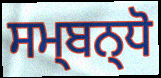
ਸਮ੍ਬਨ੍ਧੋ